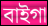
বাইগা